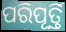
ପରିପୂର୍ତ୍ତି